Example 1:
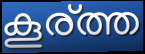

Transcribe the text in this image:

കൂര്ത്ത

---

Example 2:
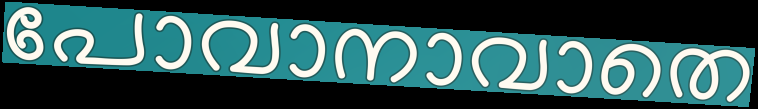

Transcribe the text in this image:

പോവാനാവാതെ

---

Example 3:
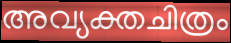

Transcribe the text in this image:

അവ്യക്തചിത്രം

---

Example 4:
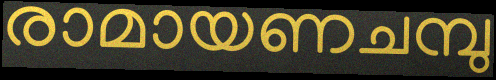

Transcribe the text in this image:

രാമായണചമ്പു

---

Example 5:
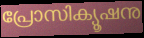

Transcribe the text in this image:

പ്രോസിക്യൂഷനു